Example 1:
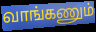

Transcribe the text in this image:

வாங்கணும்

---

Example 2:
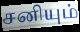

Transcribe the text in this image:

சனியும்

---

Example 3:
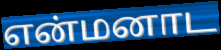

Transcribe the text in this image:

என்மனாட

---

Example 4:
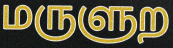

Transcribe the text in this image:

மருளுற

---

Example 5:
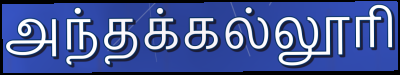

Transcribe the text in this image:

அந்தக்கல்லூரி